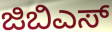
ಜಿಬಿಎಸ್